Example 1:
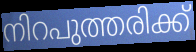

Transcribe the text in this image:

നിറപുത്തരിക്ക്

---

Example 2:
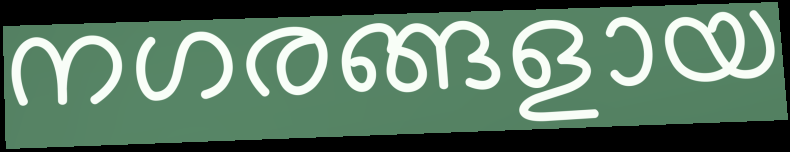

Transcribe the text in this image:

നഗരങ്ങളായ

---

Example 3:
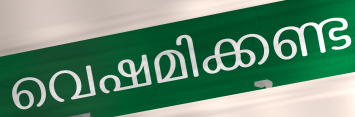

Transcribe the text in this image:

വെഷമിക്കണ്ട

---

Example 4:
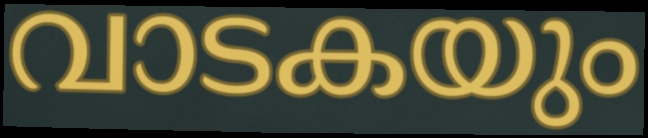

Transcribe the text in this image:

വാടകയും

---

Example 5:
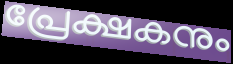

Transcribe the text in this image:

പ്രേക്ഷകനും